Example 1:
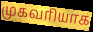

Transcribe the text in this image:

முகவரியாக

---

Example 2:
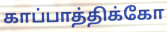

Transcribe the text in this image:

காப்பாத்திக்கோ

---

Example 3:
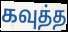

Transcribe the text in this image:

கவுத்த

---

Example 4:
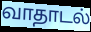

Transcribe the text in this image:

வாதாடல்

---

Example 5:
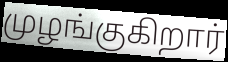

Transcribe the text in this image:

முழங்குகிறார்